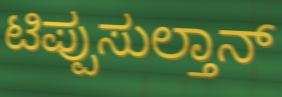
ಟಿಪ್ಪುಸುಲ್ತಾನ್